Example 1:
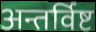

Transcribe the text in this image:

अन्तर्विष्ट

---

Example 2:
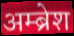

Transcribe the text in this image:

अम्ब्रेश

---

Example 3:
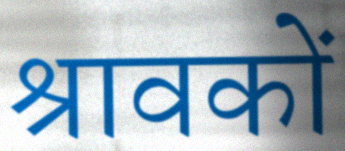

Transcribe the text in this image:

श्रावकों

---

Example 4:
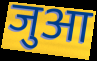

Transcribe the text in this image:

जुआ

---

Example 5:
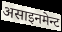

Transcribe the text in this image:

असाइनमेन्ट